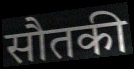
सौतकी